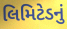
લિમિટેડનું